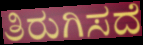
ತಿರುಗಿಸದೆ